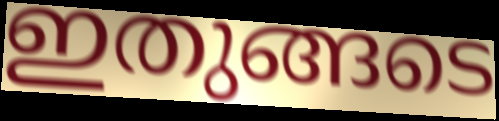
ഇതുങ്ങടെ